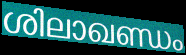
ശിലാഖണ്ഡം